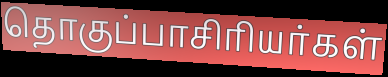
தொகுப்பாசிரியர்கள்